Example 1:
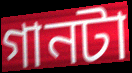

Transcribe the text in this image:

গানটা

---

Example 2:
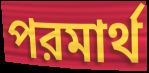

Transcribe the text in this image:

পরমার্থ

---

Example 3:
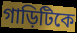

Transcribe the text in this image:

গাড়িটিকে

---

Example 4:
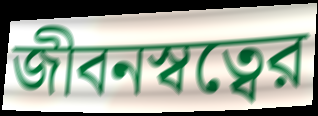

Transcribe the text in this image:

জীবনস্বত্বের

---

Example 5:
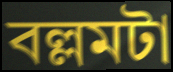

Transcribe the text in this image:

বল্লমটা